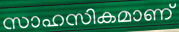
സാഹസികമാണ്